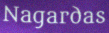
Nagardas